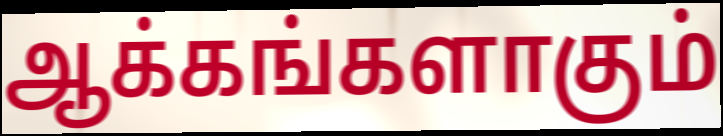
ஆக்கங்களாகும்